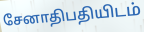
சேனாதிபதியிடம்